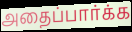
அதைப்பார்க்க